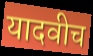
यादवीच